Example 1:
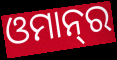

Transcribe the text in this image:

ଓମାନ୍‌ର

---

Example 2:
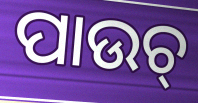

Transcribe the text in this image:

ପାଉଚ୍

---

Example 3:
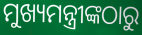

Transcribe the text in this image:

ମୁଖ୍ୟମନ୍ତ୍ରୀଙ୍କଠାରୁ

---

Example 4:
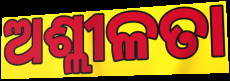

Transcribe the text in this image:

ଅଶ୍ଲୀଳତା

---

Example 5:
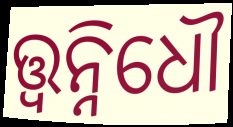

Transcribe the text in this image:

ତ୍ତ୍ଵନ୍ନିଧୌ